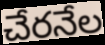
చేరనేల